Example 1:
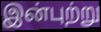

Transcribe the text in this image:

இன்புற்று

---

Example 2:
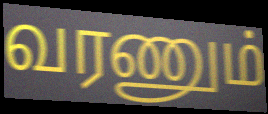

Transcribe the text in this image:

வரணும்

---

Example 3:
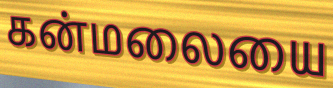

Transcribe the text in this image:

கன்மலையை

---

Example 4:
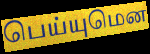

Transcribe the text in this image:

பெய்யுமென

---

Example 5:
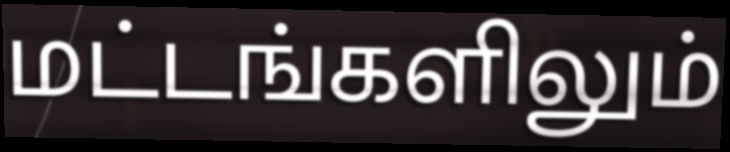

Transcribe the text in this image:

மட்டங்களிலும்